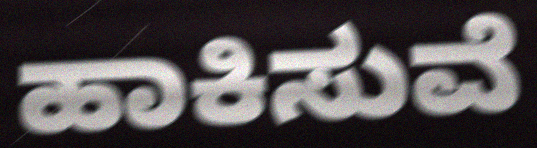
ಹಾಕಿಸುವೆ